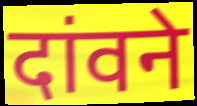
दांवने